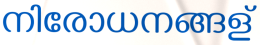
നിരോധനങ്ങള്